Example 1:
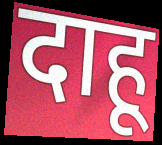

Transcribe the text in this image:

दाहू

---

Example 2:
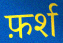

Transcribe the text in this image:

फ़र्श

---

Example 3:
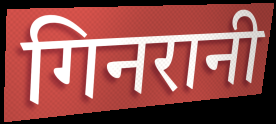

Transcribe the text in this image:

गिनरानी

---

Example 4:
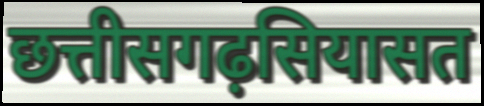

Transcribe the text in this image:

छत्तीसगढ़सियासत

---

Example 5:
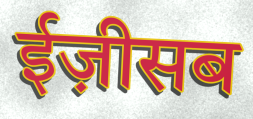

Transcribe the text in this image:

ईज़ीसब